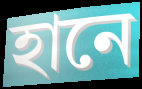
হানে